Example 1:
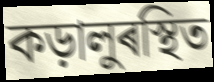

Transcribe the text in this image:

কড়ালুৰস্থিত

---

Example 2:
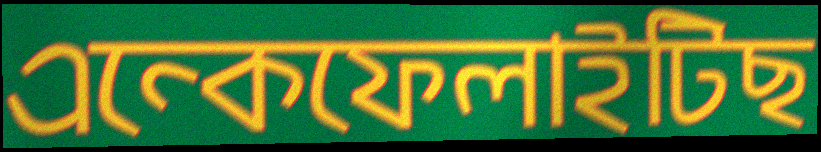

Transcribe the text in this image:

এন্কেফেলাইটিছ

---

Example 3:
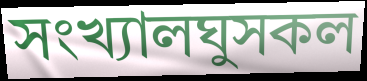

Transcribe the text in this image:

সংখ্যালঘুসকল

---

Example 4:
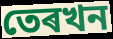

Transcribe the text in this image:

তেৰখন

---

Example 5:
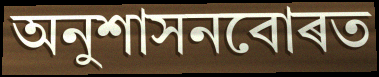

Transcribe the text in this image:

অনুশাসনবোৰত